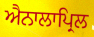
ਐਨਾਲਾਪ੍ਰਿਲ